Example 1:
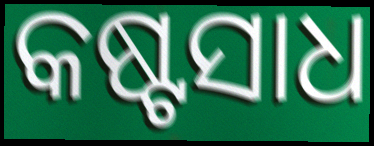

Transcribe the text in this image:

କଷ୍ଟସାଧ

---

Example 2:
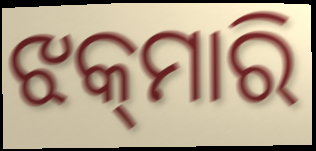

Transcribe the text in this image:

ଝକ୍‌ମାରି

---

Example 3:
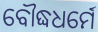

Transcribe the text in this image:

ବୌଦ୍ଧଧର୍ମେ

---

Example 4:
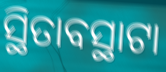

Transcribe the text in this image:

ସ୍ଥିତାବସ୍ଥାଟା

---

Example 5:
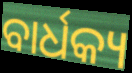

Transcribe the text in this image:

ବାର୍ଧକ୍ୟ